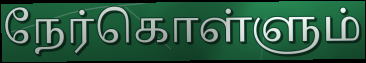
நேர்கொள்ளும்